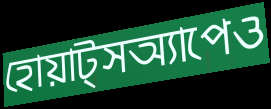
হোয়াট্‌সঅ্যাপেও